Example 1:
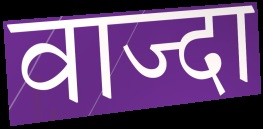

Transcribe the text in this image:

वाज्दा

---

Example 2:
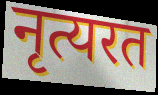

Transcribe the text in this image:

नृत्यरत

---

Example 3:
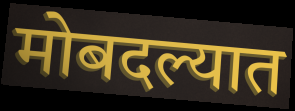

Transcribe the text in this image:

मोबदल्यात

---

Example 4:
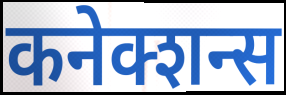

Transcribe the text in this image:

कनेक्शन्स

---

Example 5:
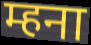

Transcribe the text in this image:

म्हना